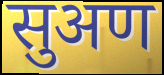
सुअण